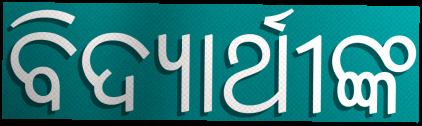
ବିଦ୍ୟାର୍ଥୀଙ୍କ